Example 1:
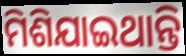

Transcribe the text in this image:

ମିଶିଯାଇଥାନ୍ତି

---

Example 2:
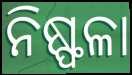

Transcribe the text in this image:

ନିଷ୍ଫଳା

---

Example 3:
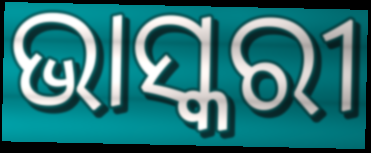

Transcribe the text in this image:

ଭାସ୍କରୀ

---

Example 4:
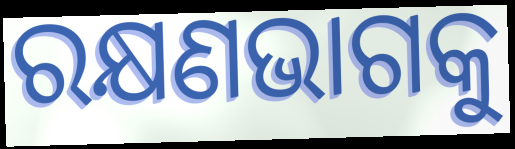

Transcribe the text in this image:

ରକ୍ଷଣଭାଗକୁ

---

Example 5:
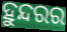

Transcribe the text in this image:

ହୁନ୍ଦରର